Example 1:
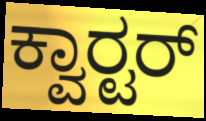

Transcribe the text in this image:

ಕ್ವಾರ‍್ಟರ್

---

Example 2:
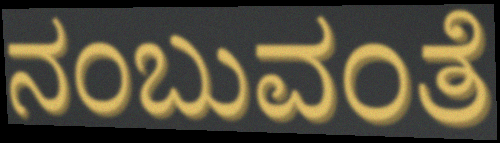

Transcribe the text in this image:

ನಂಬುವಂತೆ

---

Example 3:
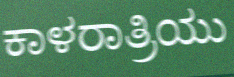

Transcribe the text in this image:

ಕಾಳರಾತ್ರಿಯು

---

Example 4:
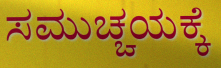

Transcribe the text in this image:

ಸಮುಚ್ಚಯಕ್ಕೆ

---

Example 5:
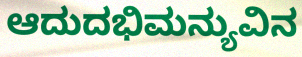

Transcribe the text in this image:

ಆದುದಭಿಮನ್ಯುವಿನ